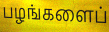
பழங்களைப்